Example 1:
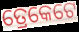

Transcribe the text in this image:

ତ୍ରେକେଟେ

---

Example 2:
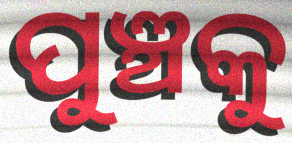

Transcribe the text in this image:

ପୁଞ୍ଚକୁ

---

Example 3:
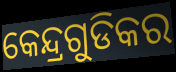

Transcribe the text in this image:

କେନ୍ଦ୍ରଗୁଡିକର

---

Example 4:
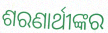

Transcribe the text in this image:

ଶରଣାର୍ଥୀଙ୍କର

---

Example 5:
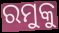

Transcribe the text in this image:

ରମୁକୁ